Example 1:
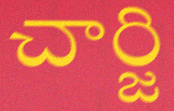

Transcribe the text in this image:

చార్జి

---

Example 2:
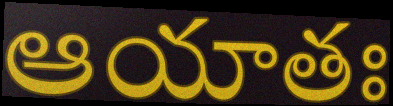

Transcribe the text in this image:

ఆయాతః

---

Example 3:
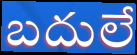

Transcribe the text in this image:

బదులే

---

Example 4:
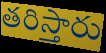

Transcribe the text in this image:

తరిస్తారు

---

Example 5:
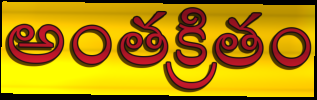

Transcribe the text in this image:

అంతక్రితం